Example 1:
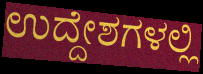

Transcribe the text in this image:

ಉದ್ದೇಶಗಳಲ್ಲಿ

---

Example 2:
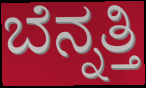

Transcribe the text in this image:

ಬೆನ್ನತ್ತಿ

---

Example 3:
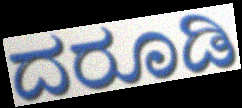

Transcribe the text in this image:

ದರೂಡಿ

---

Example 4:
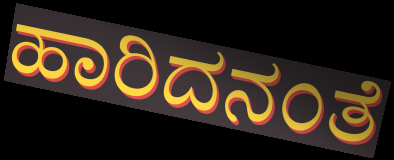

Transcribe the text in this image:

ಹಾರಿದನಂತೆ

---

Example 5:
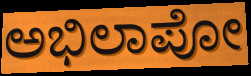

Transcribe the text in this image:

ಅಭಿಲಾಪೋ